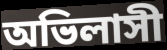
অভিলাসী